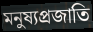
মনুষ্যপ্রজাতি